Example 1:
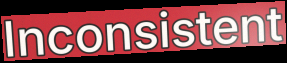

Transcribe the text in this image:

Inconsistent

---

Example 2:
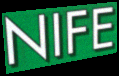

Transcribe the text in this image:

NIFE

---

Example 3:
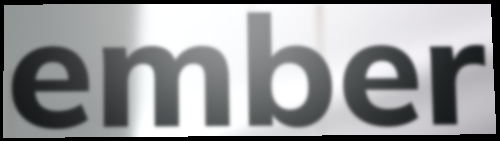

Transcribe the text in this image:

ember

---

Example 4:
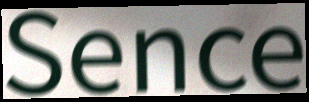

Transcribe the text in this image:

Sence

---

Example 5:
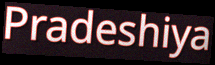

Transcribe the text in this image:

Pradeshiya